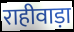
राहीवाड़ा